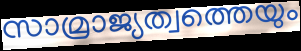
സാമ്രാജ്യത്വത്തെയും